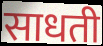
साधती